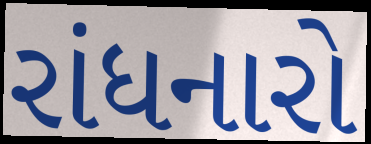
રાંધનારો